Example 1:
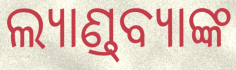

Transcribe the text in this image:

ଲ୍ୟାଣ୍ଡ୍‌ବ୍ୟାଙ୍କ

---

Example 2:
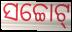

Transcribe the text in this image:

ସଚ୍ଚୋଟ୍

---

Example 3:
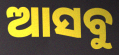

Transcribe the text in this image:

ଆସବୁ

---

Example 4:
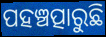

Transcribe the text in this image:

ପହଞ୍ଚତ୍ପାରୁଛି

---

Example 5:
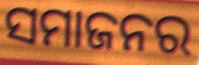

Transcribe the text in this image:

ସମାଜନର